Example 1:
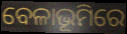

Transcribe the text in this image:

ବେଳାଭୂମିରେ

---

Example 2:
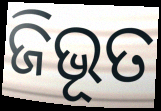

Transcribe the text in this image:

ଜିଭୂତ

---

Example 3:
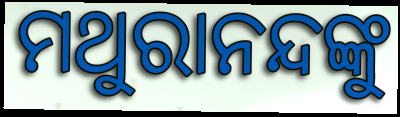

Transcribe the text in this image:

ମଥୁରାନନ୍ଦଙ୍କୁ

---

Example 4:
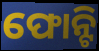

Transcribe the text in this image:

ଫୋନ୍ଟି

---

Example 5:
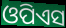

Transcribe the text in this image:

ଓପିଏସ